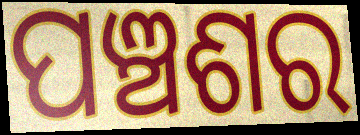
ପଞ୍ଚଶର